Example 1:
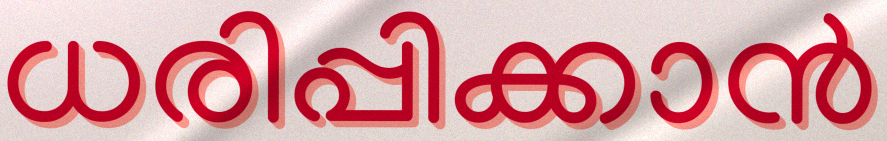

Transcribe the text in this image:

ധരിപ്പിക്കാൻ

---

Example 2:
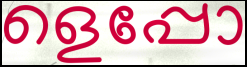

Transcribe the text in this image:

ളെപ്പോ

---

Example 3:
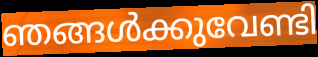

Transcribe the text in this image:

ഞങ്ങൾക്കുവേണ്ടി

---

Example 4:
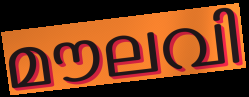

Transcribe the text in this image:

മൗലവി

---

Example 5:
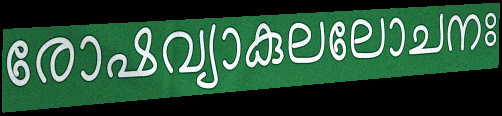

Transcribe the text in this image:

രോഷവ്യാകുലലോചനഃ